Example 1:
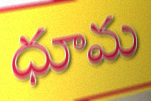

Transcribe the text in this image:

ధూమ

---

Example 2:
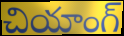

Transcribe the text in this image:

చియాంగ్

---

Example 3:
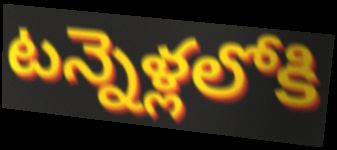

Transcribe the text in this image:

టన్నెళ్లలోకి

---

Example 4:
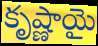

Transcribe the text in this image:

కృష్ణాయై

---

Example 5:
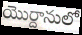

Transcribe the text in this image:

యొర్దానులో